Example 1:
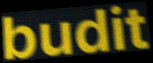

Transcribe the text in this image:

budit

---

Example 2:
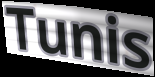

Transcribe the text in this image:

Tunis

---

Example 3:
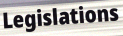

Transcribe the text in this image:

Legislations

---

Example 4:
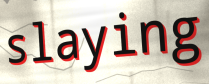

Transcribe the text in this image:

slaying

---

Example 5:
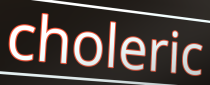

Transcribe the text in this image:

choleric